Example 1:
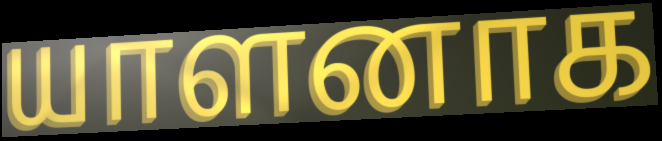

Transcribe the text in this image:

யாளனாக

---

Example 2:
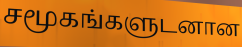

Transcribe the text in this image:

சமூகங்களுடனான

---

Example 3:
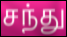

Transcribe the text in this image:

சந்து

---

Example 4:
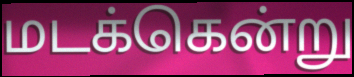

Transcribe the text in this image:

மடக்கென்று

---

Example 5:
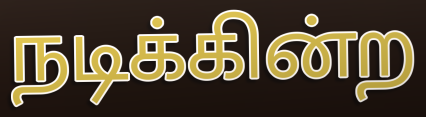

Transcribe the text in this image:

நடிக்கின்ற